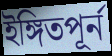
ইঙ্গিতপূর্ন